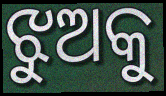
ଝୁଅକୁ